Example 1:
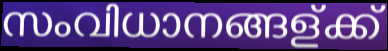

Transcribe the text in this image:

സംവിധാനങ്ങള്ക്ക്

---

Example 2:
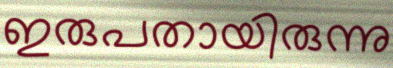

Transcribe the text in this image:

ഇരുപതായിരുന്നു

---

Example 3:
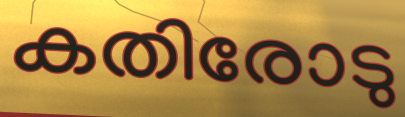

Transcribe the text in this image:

കതിരോടു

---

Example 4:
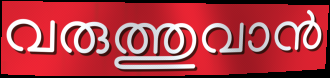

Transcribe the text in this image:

വരുത്തുവാൻ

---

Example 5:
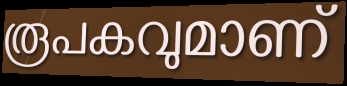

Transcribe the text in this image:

രൂപകവുമാണ്